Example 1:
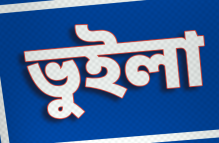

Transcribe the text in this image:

ভুইলা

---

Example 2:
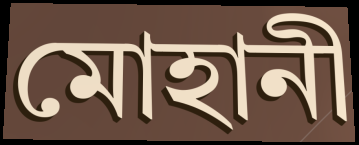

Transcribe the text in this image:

মোহানী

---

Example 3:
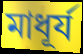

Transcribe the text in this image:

মাধূর্য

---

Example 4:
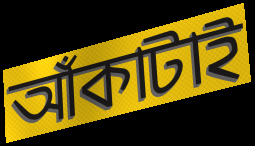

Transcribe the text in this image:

আঁকাটাই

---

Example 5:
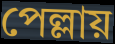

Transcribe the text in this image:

পেল্লায়